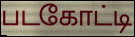
படகோட்டி